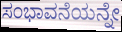
ಸಂಭಾವನೆಯನ್ನೇ